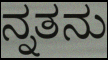
ನ್ನತನು